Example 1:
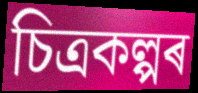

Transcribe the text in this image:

চিত্ৰকল্পৰ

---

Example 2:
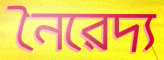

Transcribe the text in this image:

নৈৱেদ্য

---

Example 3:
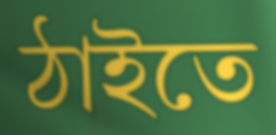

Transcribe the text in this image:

ঠাইতে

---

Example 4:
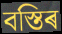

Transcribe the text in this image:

বস্তিৰ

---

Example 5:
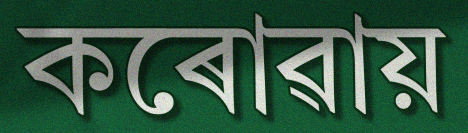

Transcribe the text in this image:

কৰোৱায়